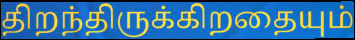
திறந்திருக்கிறதையும்